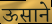
ऊसाने